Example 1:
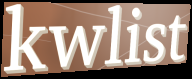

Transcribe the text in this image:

kwlist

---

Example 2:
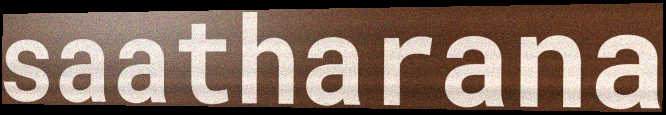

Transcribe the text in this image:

saatharana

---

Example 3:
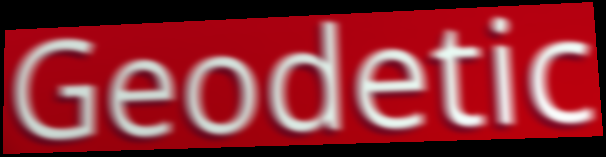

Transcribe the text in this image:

Geodetic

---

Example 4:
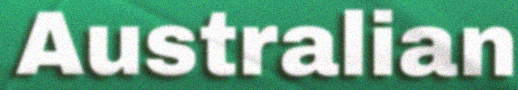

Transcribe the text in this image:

Australian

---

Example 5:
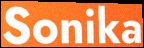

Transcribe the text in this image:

Sonika